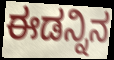
ಈಡನ್ನಿನ